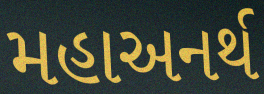
મહાઅનર્થ